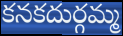
కనకదుర్గమ్మ